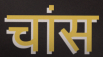
चांस